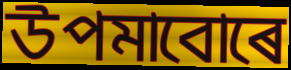
উপমাবোৰে